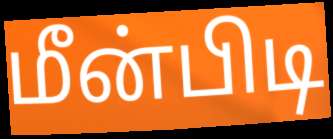
மீன்பிடி